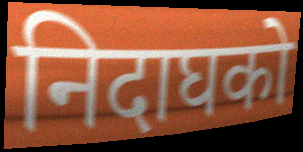
निदाघको